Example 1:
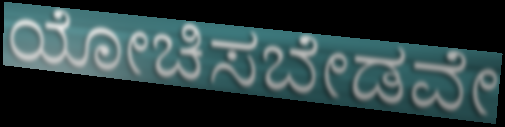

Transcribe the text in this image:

ಯೋಚಿಸಬೇಡವೇ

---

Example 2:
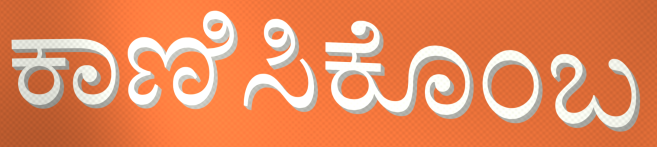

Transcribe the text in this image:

ಕಾಣಿಸಿಕೊಂಬ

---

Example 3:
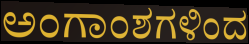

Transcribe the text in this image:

ಅಂಗಾಂಶಗಳಿಂದ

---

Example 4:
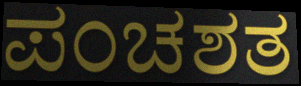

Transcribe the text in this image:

ಪಂಚಶತ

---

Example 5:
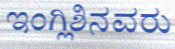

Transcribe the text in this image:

ಇಂಗ್ಲಿಶಿನವರು